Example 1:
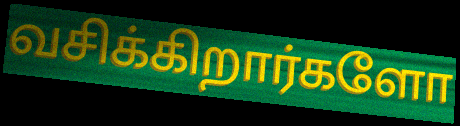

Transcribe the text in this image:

வசிக்கிறார்களோ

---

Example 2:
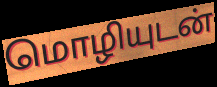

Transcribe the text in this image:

மொழியுடன்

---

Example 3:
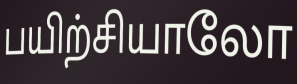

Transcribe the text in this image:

பயிற்சியாலோ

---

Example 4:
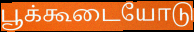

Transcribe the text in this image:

பூக்கூடையோடு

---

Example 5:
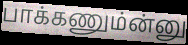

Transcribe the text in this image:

பாக்கணும்ன்னு